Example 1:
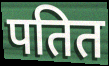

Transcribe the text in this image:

पतित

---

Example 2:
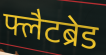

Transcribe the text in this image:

फ्लैटब्रेड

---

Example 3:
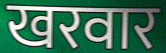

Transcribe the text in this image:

खरवार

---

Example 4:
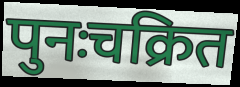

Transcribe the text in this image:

पुनःचक्रित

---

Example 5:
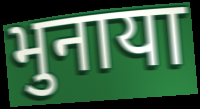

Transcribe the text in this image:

भुनाया